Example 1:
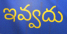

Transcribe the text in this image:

ఇవ్వదు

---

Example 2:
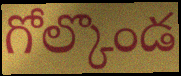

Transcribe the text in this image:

గోల్కొండ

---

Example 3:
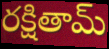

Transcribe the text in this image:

రక్షితామ్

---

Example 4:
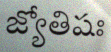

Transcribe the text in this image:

జ్యోతిషః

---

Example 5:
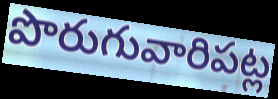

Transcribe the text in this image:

పొరుగువారిపట్ల